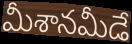
మీశానమీడే